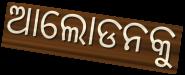
ଆଲୋଡନକୁ